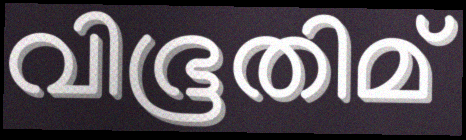
വിഭൂതിമ്